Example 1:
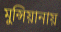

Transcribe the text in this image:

মুন্সিয়ানায়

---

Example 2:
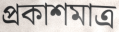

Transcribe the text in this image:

প্রকাশমাত্র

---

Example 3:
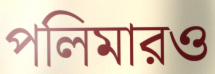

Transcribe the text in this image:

পলিমারও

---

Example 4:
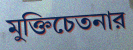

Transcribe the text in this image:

মুক্তিচেতনার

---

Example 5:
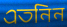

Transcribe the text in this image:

এতনিন